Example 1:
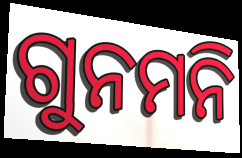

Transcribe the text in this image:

ଗୁନମନି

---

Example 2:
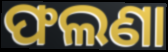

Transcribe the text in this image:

ଫଲଣା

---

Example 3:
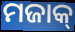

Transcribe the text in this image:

ମଜାକ୍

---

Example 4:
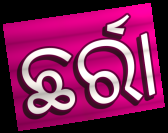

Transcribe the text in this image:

ଛର୍ରା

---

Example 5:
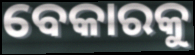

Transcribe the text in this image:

ବେକାରକୁ